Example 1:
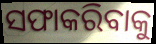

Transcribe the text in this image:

ସଫାକରିବାକୁ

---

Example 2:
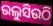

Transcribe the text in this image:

ଉଲୁସିଉଠି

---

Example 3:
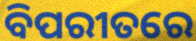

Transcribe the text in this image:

ବିପରୀତରେ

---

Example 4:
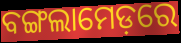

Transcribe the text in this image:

ବଙ୍ଗଲାମେଡ଼ରେ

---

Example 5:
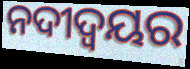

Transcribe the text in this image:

ନଦୀଦ୍ବୟର